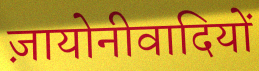
ज़ायोनीवादियों